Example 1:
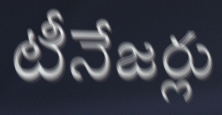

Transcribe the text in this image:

టీనేజర్లు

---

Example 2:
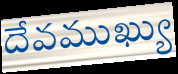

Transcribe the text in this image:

దేవముఖ్యు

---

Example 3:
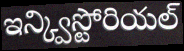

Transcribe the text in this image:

ఇన్క్విస్టోరియల్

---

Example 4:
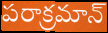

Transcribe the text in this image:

పరాక్రమాన్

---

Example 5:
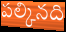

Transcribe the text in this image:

పల్కినది